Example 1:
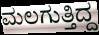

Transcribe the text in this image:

ಮಲಗುತ್ತಿದ್ದ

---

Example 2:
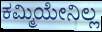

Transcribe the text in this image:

ಕಮ್ಮಿಯೇನಿಲ್ಲ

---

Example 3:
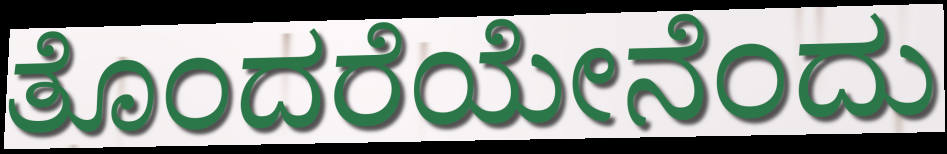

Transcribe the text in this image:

ತೊಂದರೆಯೇನೆಂದು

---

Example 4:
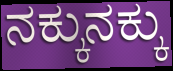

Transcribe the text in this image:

ನಕ್ಕುನಕ್ಕು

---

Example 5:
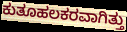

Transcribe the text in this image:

ಕುತೂಹಲಕರವಾಗಿತ್ತು